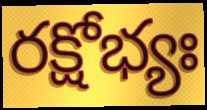
రక్షోభ్యః